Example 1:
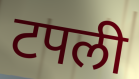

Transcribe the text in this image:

टपली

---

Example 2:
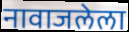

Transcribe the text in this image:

नावाजलेला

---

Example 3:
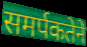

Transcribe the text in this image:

समर्पकतेने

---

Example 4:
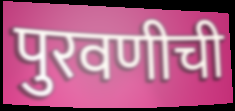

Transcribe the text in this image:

पुरवणीची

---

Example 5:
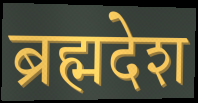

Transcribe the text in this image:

ब्रह्मदेश